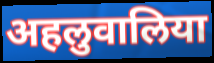
अहलुवालिया